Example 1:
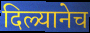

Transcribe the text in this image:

दिल्यानेच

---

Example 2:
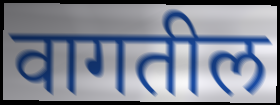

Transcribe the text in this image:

वागतील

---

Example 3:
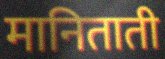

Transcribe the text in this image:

मानिताती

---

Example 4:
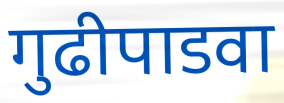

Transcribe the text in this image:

गुढीपाडवा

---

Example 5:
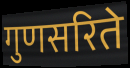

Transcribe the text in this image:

गुणसरिते